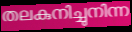
തലകുനിച്ചുനിന്ന